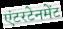
एंटरटेनमेंट